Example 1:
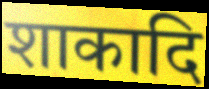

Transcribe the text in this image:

शाकादि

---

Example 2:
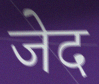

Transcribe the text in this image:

जेद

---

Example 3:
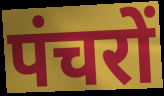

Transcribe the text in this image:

पंचरों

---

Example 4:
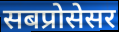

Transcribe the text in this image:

सबप्रोसेसर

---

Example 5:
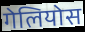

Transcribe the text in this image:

गेलियोस